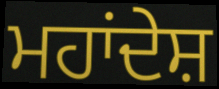
ਮਹਾਂਦੇਸ਼